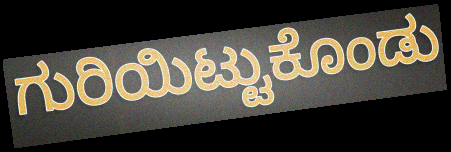
ಗುರಿಯಿಟ್ಟುಕೊಂಡು